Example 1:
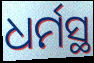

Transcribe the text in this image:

ଧର୍ମସ୍ଥ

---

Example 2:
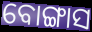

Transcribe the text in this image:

ବୋଙ୍ଗାସ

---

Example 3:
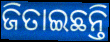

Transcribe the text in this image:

ଜିତାଇଛନ୍ତି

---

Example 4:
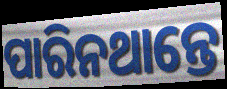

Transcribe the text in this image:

ପାରିନଥାନ୍ତେ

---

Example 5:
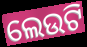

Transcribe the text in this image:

ଲେଉଟି